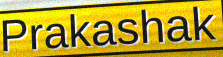
Prakashak